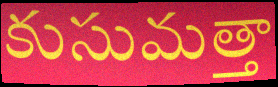
కుసుమత్తా